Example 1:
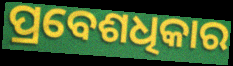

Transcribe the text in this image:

ପ୍ରବେଶଧିକାର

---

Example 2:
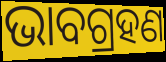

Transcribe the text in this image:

ଭାବଗ୍ରହଣ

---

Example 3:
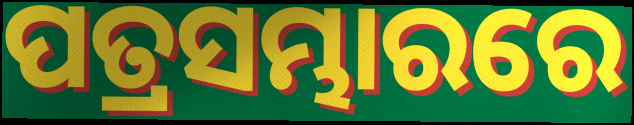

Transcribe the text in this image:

ପତ୍ରସମ୍ଭାରରେ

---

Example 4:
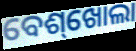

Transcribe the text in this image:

ବେଶ୍‌ଖୋଲା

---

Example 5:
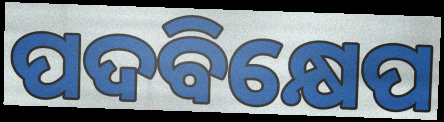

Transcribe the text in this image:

ପଦବିକ୍ଷେପ